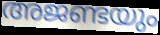
അജണ്ടയും